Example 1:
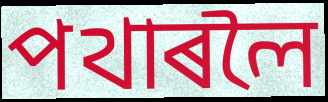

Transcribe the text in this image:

পথাৰলৈ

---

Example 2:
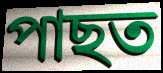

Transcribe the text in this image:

পাছত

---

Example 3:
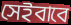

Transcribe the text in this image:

সেইবাবে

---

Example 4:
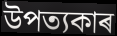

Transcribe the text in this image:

উপত্যকাৰ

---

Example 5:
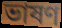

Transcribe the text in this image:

ভাষণ